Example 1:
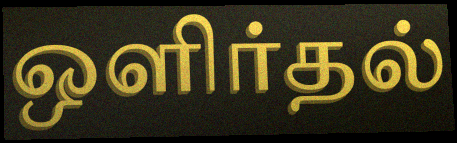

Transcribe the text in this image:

ஒளிர்தல்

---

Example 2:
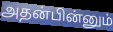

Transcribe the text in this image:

அதன்பின்னும்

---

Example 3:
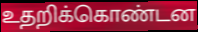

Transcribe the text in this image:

உதறிக்கொண்டன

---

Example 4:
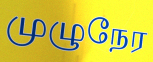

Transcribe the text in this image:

முழுநேர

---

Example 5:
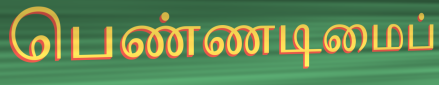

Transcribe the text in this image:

பெண்ணடிமைப்